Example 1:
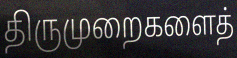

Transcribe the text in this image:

திருமுறைகளைத்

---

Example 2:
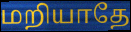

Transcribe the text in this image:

மறியாதே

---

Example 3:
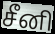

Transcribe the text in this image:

சீனி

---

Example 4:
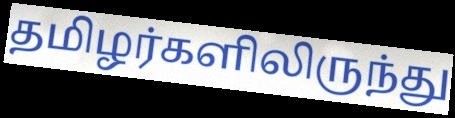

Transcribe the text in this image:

தமிழர்களிலிருந்து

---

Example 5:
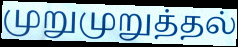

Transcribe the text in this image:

முறுமுறுத்தல்